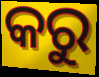
କରୁ